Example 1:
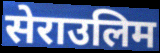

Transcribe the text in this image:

सेराउलिम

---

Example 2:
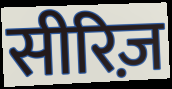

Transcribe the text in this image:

सीरिज़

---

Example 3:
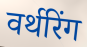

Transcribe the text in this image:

वर्थरिंग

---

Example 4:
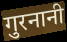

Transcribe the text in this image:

गुरनानी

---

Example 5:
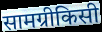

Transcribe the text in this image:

सामग्रीकिसी